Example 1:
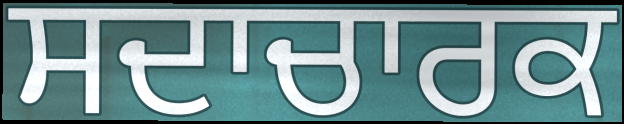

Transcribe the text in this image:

ਸਦਾਚਾਰਕ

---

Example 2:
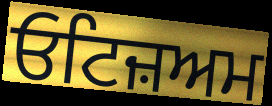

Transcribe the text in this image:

ਓਟਿਜ਼ਅਮ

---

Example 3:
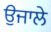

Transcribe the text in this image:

ਉਜਾਲੇ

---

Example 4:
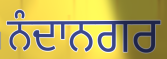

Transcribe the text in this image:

ਨੰਦਾਨਗਰ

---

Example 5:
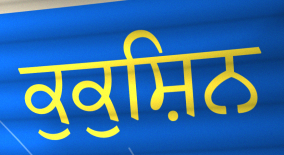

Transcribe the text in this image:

ਕੁਕੁਸ਼ਿਨ